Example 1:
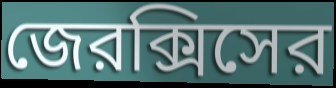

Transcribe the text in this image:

জেরক্সিসের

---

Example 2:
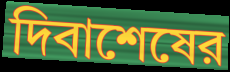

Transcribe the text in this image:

দিবাশেষের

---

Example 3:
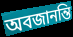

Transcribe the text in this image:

অবজানন্তি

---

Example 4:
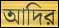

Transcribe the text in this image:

আদির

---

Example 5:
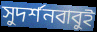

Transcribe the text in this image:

সুদর্শনবাবুই